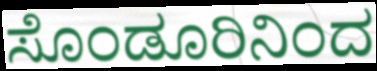
ಸೊಂಡೂರಿನಿಂದ